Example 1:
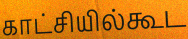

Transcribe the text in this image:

காட்சியில்கூட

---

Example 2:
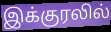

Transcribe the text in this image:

இக்குரலில்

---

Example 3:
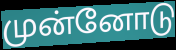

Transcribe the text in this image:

முன்னோடு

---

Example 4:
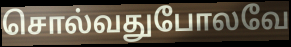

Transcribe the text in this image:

சொல்வதுபோலவே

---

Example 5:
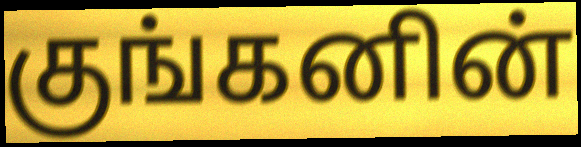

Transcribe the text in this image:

குங்கனின்